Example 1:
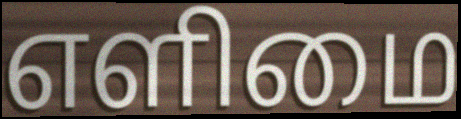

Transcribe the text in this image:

எளிமை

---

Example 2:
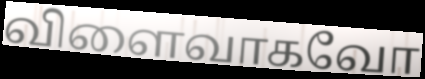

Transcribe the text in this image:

விளைவாகவோ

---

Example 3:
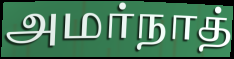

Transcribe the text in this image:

அமர்நாத்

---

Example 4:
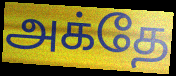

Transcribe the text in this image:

அக்தே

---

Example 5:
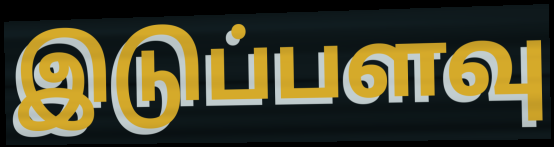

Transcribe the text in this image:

இடுப்பளவு